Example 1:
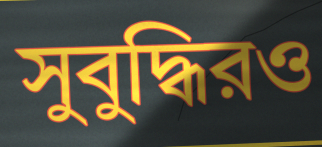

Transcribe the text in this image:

সুবুদ্ধিরও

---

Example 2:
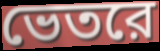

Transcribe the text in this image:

ভেতরে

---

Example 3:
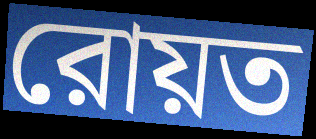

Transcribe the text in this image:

রোয়ত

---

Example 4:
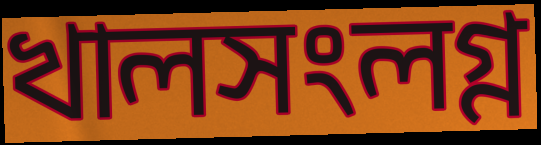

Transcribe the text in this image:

খালসংলগ্ন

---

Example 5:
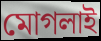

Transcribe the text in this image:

মোগলাই